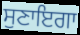
ਸੁਣਾਇਗਾ